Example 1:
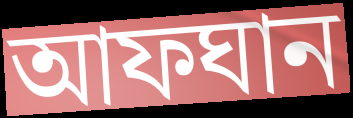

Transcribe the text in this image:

আফঘান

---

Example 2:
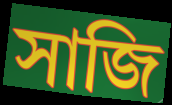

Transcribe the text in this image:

সাজি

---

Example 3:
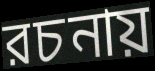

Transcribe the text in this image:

রচনায়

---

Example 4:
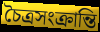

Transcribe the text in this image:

চৈত্রসংক্রান্তি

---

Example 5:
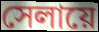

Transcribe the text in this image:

সেলায়ে